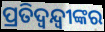
ପ୍ରତିଦ୍ୱନ୍ଦ୍ୱୀଙ୍କର